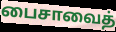
பைசாவைத்